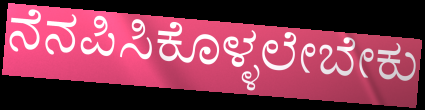
ನೆನಪಿಸಿಕೊಳ್ಳಲೇಬೇಕು